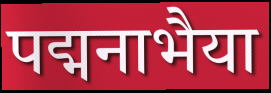
पद्मनाभैया